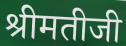
श्रीमतीजी